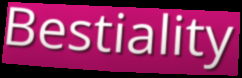
Bestiality